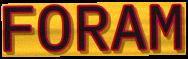
FORAM